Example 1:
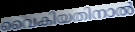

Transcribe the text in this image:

വൈകിയതിനാൽ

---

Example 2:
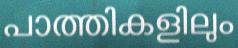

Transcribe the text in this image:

പാത്തികളിലും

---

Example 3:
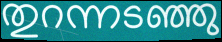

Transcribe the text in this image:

തുറന്നടഞ്ഞു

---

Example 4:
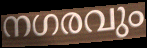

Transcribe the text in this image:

നഗരവും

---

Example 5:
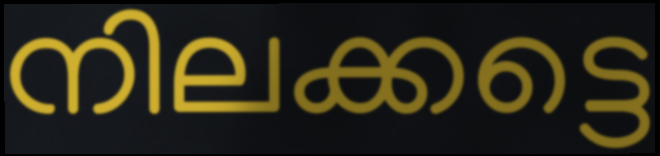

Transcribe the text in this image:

നിലക്കട്ടെ